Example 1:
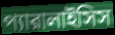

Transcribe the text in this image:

প্যারালাইসিস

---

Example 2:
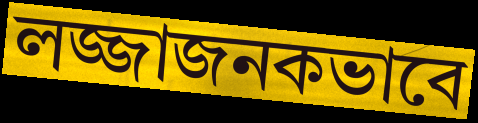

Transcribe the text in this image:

লজ্জাজনকভাবে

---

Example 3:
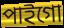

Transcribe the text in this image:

পাইগো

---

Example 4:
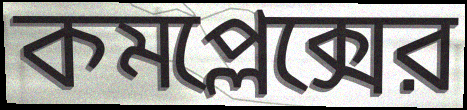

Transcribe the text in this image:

কমপ্লেক্সের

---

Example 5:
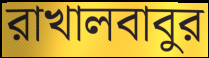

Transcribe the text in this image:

রাখালবাবুর